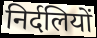
निर्दलियों